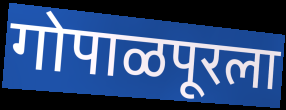
गोपाळपूरला